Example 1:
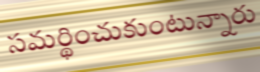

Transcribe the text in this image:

సమర్థించుకుంటున్నారు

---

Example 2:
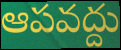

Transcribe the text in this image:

ఆపవద్దు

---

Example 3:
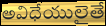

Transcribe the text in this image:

అవిధేయులైతే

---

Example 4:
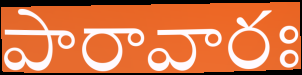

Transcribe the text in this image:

పారావారః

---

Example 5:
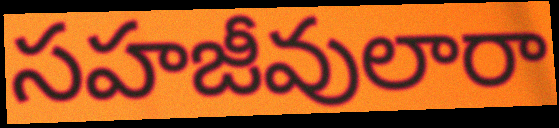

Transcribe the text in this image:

సహజీవులారా